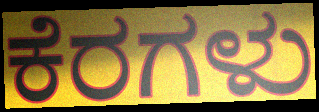
ಕೆರಗಳು